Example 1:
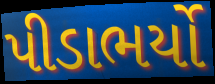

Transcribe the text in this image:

પીડાભર્યો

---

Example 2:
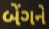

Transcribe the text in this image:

બેંગને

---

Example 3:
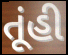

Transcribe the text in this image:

તૂંહી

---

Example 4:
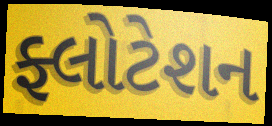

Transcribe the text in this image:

ફ્લોટેશન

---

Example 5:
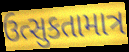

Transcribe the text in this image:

ઉત્સુકતામાત્ર